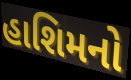
હાશિમનો